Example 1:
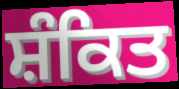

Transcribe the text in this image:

ਸ਼ੰਕਿਤ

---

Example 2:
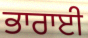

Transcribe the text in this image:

ਭਾਰਾਈ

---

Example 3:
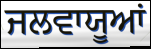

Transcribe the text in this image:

ਜਲਵਾਯੂਆਂ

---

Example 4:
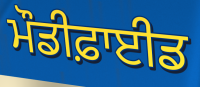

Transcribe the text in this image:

ਮੌਡੀਫ਼ਾਈਡ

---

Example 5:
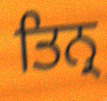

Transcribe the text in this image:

ਤਿਨ੍ਰ